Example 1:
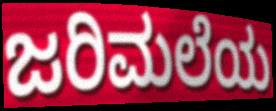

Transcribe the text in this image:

ಜರಿಮಲೆಯ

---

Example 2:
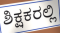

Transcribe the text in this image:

ಶಿಕ್ಷಕರಲ್ಲಿ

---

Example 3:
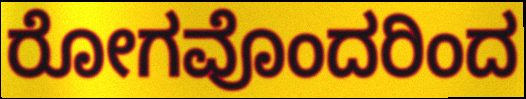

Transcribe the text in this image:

ರೋಗವೊಂದರಿಂದ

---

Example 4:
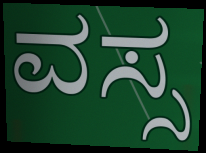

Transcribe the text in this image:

ವಸ್ಸ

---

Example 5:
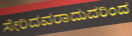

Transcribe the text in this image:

ಸೇರಿದವರಾದುದರಿಂದ